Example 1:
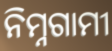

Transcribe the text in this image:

ନିମ୍ନଗାମୀ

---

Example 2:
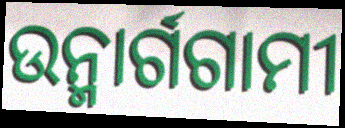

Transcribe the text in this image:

ଉନ୍ମାର୍ଗଗାମୀ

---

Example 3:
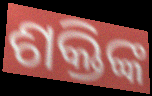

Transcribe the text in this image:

ଶକ୍ତିଙ୍କ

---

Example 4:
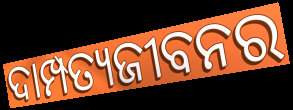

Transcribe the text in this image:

ଦାମ୍ପତ୍ୟଜୀବନର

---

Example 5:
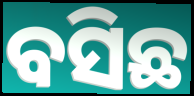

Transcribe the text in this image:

ବସିଛ